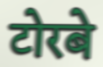
टोरबे